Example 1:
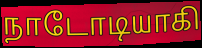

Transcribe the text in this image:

நாடோடியாகி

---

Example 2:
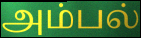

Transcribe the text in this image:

அம்பல்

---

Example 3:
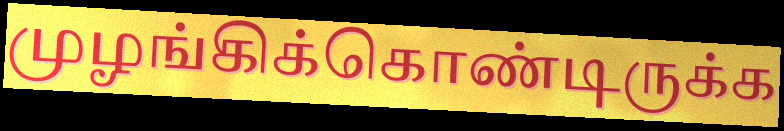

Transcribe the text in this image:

முழங்கிக்கொண்டிருக்க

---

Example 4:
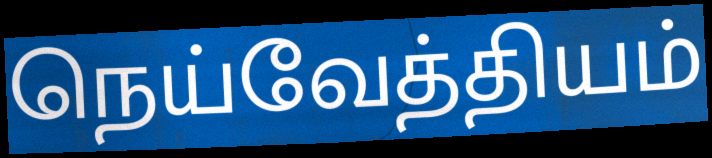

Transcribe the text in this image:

நெய்வேத்தியம்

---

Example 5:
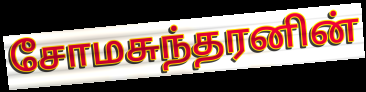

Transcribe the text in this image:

சோமசுந்தரனின்